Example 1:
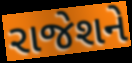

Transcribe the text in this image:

રાજેશને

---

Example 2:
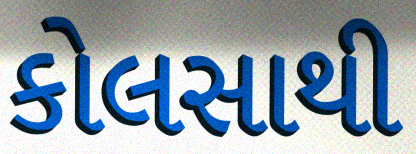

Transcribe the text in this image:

કોલસાથી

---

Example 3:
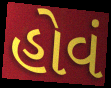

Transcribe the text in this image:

હોવં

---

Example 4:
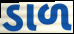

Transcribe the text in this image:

ડાળ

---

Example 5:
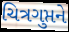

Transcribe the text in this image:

ચિત્રગુપ્તને